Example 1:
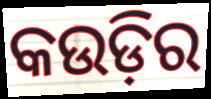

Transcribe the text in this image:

କଉଡ଼ିର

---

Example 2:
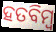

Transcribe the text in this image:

ହତବିମ୍ବ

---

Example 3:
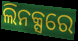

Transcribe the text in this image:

ଲିନକ୍ସରେ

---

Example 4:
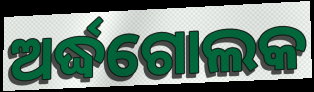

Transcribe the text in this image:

ଅର୍ଦ୍ଧଗୋଲକ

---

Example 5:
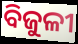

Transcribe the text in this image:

ବିଜୁଳୀ